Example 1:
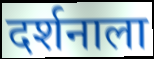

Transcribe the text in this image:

दर्शनाला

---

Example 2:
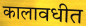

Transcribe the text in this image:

कालावधीत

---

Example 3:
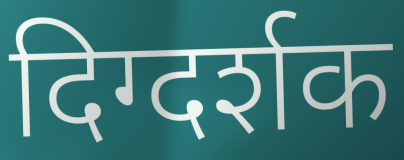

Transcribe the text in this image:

दिग्दर्शक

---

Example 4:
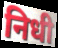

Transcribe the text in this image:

निधी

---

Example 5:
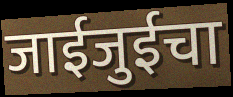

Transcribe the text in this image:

जाईजुईचा